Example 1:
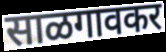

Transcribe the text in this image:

साळगावकर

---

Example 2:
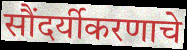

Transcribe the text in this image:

सौंदर्यीकरणाचे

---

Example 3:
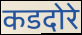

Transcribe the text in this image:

कडदोरे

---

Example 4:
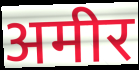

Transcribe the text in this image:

अमीर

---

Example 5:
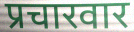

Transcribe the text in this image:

प्रचारवार